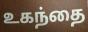
உகந்தை